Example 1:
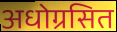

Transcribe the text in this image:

अधोग्रसित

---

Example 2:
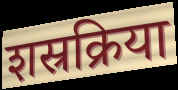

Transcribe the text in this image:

शस्रक्रिया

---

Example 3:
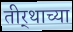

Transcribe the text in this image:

तीर्थाच्या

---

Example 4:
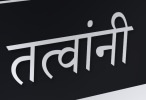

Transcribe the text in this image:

तत्वांनी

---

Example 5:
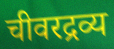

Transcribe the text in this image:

चीवरद्रव्य